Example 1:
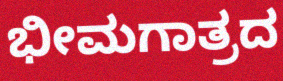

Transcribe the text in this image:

ಭೀಮಗಾತ್ರದ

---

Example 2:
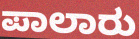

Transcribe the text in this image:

ಪಾಲಾರು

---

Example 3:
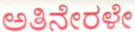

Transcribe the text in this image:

ಅತಿನೇರಳೇ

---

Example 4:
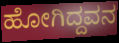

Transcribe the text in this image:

ಹೋಗಿದ್ದವನ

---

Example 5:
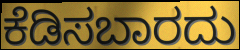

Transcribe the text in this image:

ಕೆಡಿಸಬಾರದು